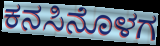
ಕನಸಿನೊಳಗ